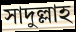
সাদুল্লাহ